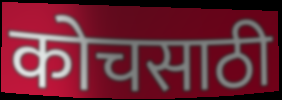
कोचसाठी